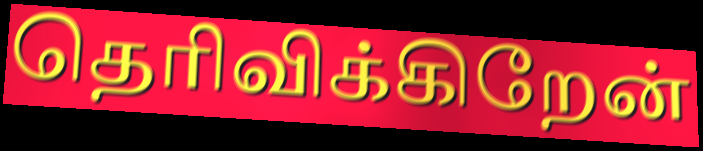
தெரிவிக்கிறேன்